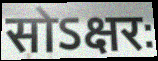
सोऽक्षरः